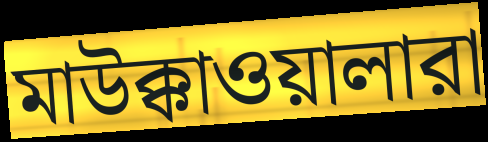
মাউক্কাওয়ালারা